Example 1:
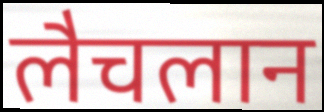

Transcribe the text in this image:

लैचलान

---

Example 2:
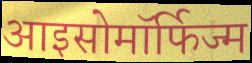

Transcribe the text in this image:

आइसोमॉर्फिज्म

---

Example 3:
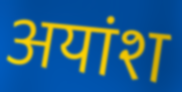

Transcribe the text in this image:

अयांश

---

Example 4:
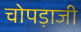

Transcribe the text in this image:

चोपड़ाजी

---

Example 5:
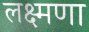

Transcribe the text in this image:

लक्ष्मणा